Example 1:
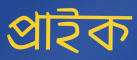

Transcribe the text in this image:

প্রাইক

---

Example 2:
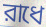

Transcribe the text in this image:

রাধে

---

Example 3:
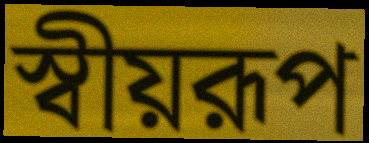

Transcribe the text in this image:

স্বীয়রূপ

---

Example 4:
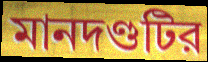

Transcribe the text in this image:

মানদণ্ডটির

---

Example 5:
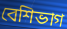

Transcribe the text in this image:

বেশিভাগ